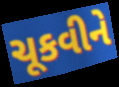
ચૂકવીને